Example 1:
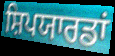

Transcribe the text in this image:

ਸ਼ਿਪਯਾਰਡਾਂ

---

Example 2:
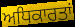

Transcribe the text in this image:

ਅਧਿਕਾਰਤਾਂ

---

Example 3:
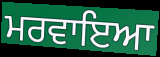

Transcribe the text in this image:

ਮਰਵਾਇਆ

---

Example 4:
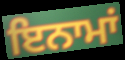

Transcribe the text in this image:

ਇਨਾਮਾਂ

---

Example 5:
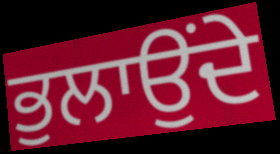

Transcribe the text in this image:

ਭੁਲਾਉਂਦੇ